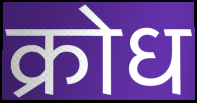
क्रोध